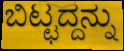
ಬಿಟ್ಟದ್ದನ್ನು